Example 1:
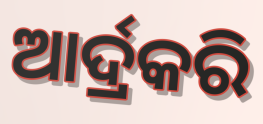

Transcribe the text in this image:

ଆର୍ଦ୍ରକରି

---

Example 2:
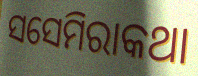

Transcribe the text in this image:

ସସେମିରାକଥା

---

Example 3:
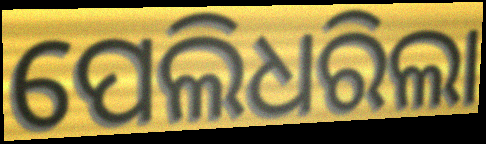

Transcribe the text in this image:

ପେଲିଧରିଲା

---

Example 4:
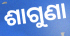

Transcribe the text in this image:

ଶାଗୁଣା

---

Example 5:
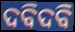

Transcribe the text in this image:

ଦବିଦବି